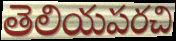
తెలియపరచి